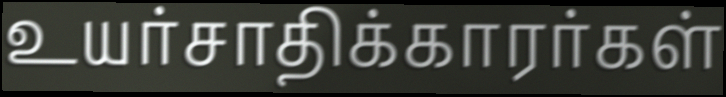
உயர்சாதிக்காரர்கள்